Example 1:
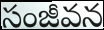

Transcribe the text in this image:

సంజీవన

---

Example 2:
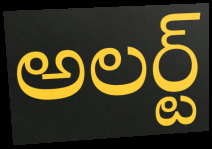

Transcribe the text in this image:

అలర్ట్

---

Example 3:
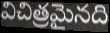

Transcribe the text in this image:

విచిత్రమైనది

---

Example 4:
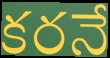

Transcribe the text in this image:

కరనే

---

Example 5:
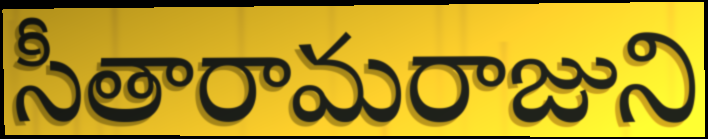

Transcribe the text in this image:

సీతారామరాజుని